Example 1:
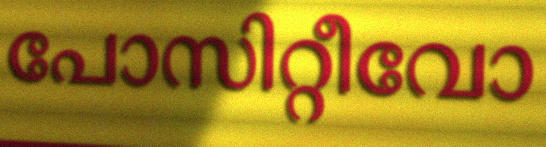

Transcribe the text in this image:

പോസിറ്റീവോ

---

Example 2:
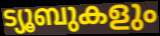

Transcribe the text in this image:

ട്യൂബുകളും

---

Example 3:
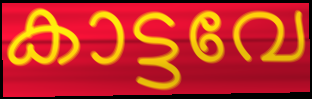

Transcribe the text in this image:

കാട്ടവേ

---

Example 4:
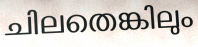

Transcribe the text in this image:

ചിലതെങ്കിലും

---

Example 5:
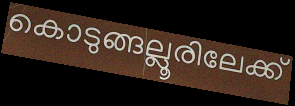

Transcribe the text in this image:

കൊടുങ്ങല്ലൂരിലേക്ക്